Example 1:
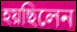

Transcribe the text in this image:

হয়ছিলেন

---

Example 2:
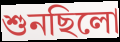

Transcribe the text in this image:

শুনছিলো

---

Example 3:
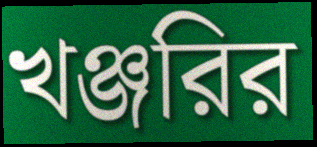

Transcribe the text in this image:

খঞ্জরির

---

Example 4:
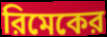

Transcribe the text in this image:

রিমেকের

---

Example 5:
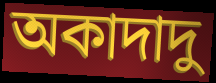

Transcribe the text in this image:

অকাদাদু